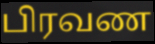
பிரவண